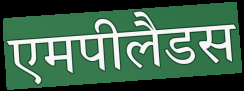
एमपीलैडस